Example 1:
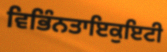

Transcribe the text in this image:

ਵਿਭਿੰਨਤਾਇਕੁਇਟੀ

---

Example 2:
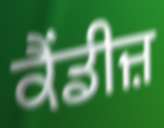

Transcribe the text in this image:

ਕੈਂਡੀਜ਼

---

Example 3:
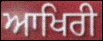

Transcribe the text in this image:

ਆਖਿਰੀ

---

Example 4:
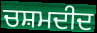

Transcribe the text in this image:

ਚਸ਼ਮਦੀਦ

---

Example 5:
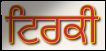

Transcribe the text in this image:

ਟਿਰਕੀ